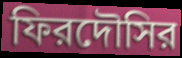
ফিরদৌসির